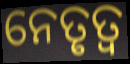
ନେତୃତ୍ଵ